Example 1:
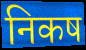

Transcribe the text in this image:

निकष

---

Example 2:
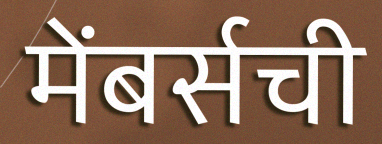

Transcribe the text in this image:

मेंबर्सची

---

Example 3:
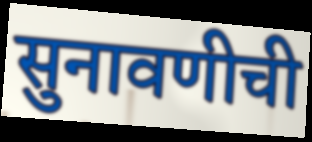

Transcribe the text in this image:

सुनावणीची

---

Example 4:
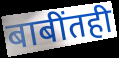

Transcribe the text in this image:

बाबींतही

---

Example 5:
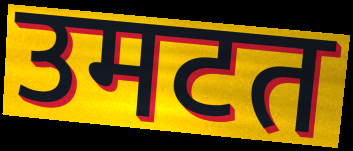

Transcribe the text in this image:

उमटत